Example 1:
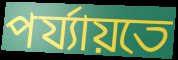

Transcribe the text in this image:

পৰ্য্যায়তে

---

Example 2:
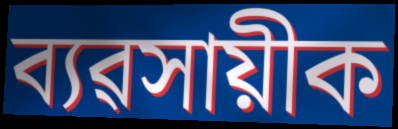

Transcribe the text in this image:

ব্যৱসায়ীক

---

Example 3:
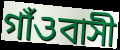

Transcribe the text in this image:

গাঁওবাসী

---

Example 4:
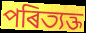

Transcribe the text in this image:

পৰিত্যক্ত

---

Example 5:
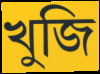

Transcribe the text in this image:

খুজি